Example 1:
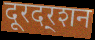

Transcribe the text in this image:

दूरदर्शन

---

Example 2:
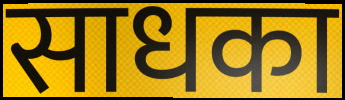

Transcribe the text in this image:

साधका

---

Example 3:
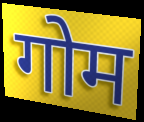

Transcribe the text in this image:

गोम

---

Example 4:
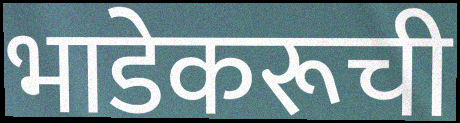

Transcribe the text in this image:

भाडेकरूची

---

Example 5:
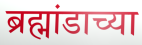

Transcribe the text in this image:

ब्रह्मांडाच्या